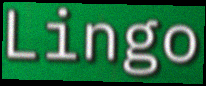
Lingo